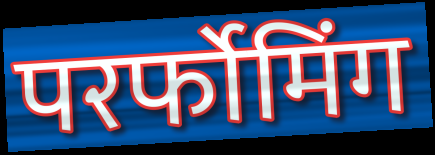
परर्फोमिंग